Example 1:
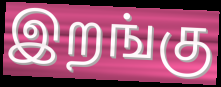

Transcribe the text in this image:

இறங்கு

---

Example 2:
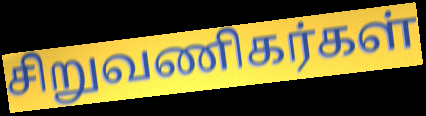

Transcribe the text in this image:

சிறுவணிகர்கள்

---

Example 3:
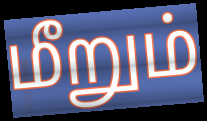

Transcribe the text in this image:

மீறும்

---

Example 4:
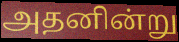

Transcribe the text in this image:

அதனின்று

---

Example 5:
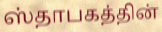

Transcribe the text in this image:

ஸ்தாபகத்தின்